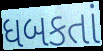
ધબકતાં